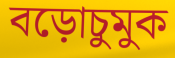
বড়োচুমুক